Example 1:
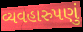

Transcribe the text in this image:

વ્યવહારુપણું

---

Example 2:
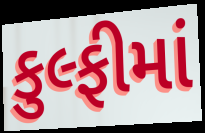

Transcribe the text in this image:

કુલ્ફીમાં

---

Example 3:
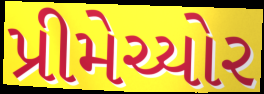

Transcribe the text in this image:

પ્રીમેચ્યોર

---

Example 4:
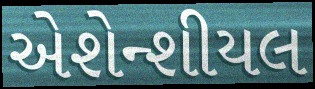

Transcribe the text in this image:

એશેન્શીયલ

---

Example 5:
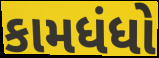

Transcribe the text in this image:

કામધંધો